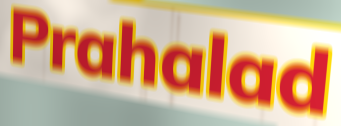
Prahalad